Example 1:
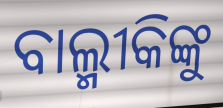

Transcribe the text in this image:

ବାଲ୍ମୀକିଙ୍କୁ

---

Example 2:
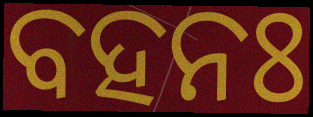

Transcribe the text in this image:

ବହନଃ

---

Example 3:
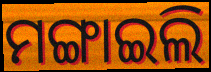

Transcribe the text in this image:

ମଙ୍ଗାଇଲି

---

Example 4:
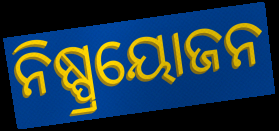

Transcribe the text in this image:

ନିଷ୍ପ୍ରୟୋଜନ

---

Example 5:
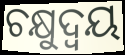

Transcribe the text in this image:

ଚକ୍ଷୁଦ୍ୱୟ